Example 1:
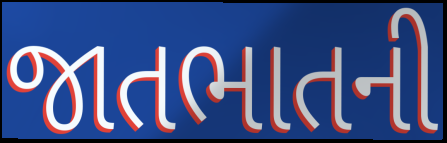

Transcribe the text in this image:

જાતભાતની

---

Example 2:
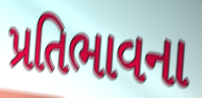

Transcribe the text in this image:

પ્રતિભાવના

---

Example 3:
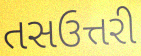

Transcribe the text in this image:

તસઉત્તરી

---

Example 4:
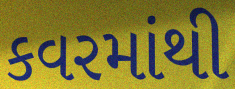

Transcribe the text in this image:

કવરમાંથી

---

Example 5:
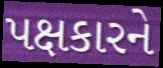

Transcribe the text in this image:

પક્ષકારને